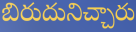
బిరుదునిచ్చారు